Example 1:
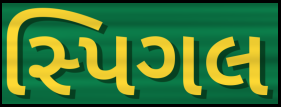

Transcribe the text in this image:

સ્પિગલ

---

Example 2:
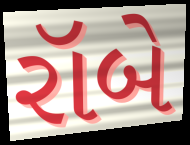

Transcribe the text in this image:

રૉબે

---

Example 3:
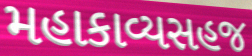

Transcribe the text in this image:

મહાકાવ્યસહજ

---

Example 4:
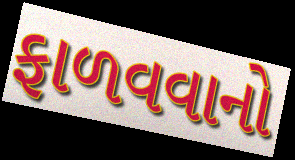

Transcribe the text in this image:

ફાળવવાનો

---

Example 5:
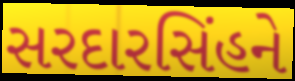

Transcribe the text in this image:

સરદારસિંહને